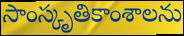
సాంస్కృతికాంశాలను